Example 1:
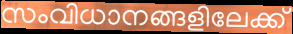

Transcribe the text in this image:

സംവിധാനങ്ങളിലേക്ക്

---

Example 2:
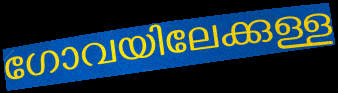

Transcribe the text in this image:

ഗോവയിലേക്കുള്ള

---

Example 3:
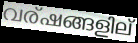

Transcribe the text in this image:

വര്ഷങ്ങളില്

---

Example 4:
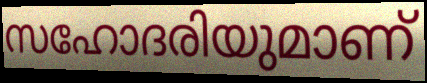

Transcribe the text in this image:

സഹോദരിയുമാണ്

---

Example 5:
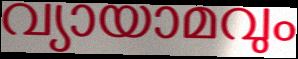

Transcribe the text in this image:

വ്യായാമവും